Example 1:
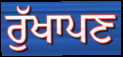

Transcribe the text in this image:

ਰੁੱਖਾਪਣ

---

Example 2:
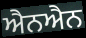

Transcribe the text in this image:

ਐਨਐਨ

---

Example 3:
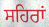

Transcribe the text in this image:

ਸਹਿਰਾਂ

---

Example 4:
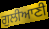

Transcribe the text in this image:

ਗੁਲੀਆਣੀ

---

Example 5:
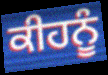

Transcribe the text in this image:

ਕੀਹਨੂੰ